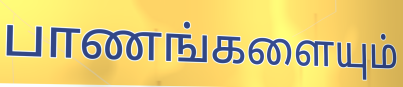
பாணங்களையும்